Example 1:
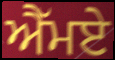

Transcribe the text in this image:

ਐੱਮਏ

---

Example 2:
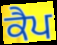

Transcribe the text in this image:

ਕੈਪ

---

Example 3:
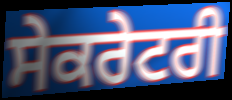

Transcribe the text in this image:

ਸੇਕਰੇਟਰੀ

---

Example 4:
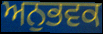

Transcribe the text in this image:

ਅਨੁਭਵਕ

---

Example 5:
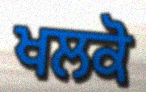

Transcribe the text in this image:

ਖਲਕੋ